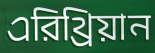
এরিথ্রিয়ান